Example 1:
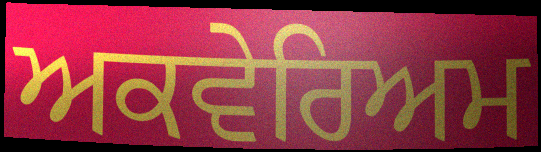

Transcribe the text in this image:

ਅਕਵੇਰਿਅਮ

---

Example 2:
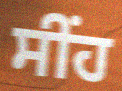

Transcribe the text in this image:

ਸੀਂਹ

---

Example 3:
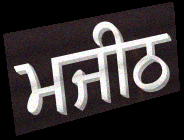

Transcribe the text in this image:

ਮਜੀਠ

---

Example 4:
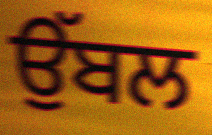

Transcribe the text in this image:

ਉੱਬਲ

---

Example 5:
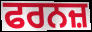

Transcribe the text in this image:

ਫਰਨਜ਼